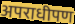
अपराधीपण